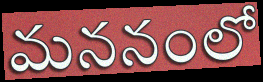
మననంలో